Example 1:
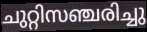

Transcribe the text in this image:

ചുറ്റിസഞ്ചരിച്ചു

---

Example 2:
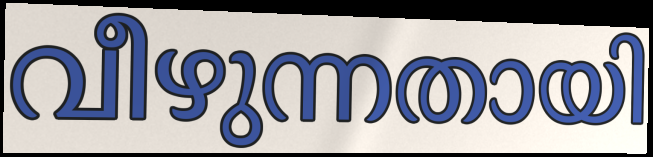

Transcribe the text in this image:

വീഴുന്നതായി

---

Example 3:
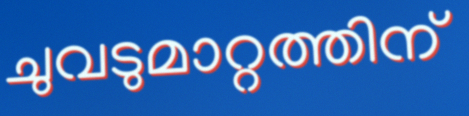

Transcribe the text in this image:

ചുവടുമാറ്റത്തിന്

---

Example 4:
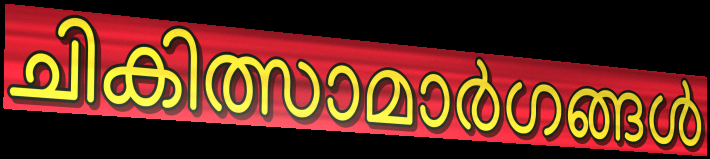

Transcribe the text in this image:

ചികിത്സാമാർഗങ്ങൾ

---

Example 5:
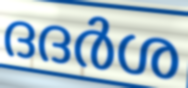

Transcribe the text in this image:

ദദർശ